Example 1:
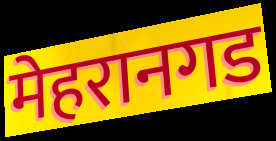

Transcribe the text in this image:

मेहरानगड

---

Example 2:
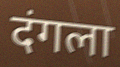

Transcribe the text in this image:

दंगला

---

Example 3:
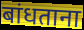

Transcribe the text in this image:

बांधताना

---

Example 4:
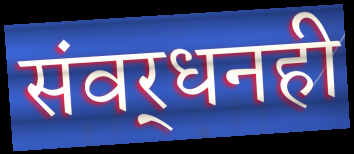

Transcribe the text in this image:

संवर्धनही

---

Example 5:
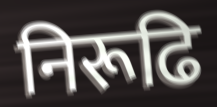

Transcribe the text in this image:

निरूढि